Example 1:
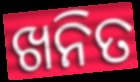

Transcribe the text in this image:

ଖନିତ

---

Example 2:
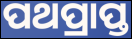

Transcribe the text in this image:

ପଥପ୍ରାପ୍ତ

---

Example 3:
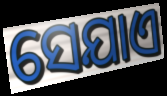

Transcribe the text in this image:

ସେଯାଏ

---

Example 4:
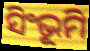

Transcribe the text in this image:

ସିଂଭୂମି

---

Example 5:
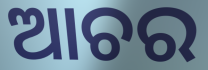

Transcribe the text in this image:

ଆଚର